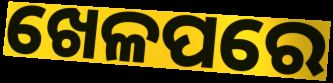
ଖେଳପରେ